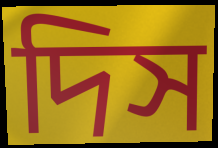
দিস